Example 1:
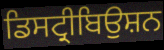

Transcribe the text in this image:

ਡਿਸਟ੍ਰੀਬਿਉਸ਼ਨ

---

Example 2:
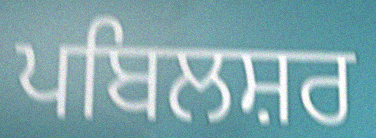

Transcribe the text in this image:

ਪਬਿਲਸ਼ਰ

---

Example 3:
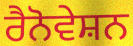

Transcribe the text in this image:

ਰੈਨੋਵੇਸ਼ਨ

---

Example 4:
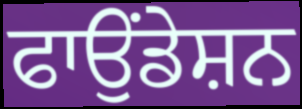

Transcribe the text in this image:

ਫਾਉਂਡੇਸ਼ਨ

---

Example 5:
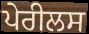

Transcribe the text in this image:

ਪੇਰੀਲਸ